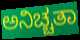
ಅನಿಚ್ಚತಾ